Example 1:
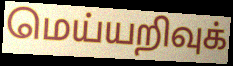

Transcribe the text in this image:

மெய்யறிவுக்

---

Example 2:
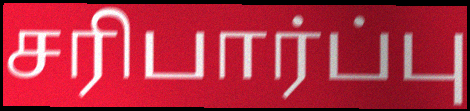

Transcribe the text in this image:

சரிபார்ப்பு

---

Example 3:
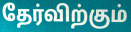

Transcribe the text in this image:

தேர்விற்கும்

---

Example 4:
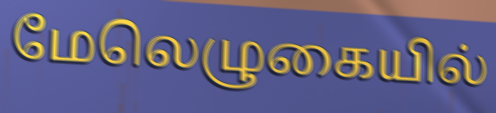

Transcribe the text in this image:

மேலெழுகையில்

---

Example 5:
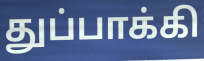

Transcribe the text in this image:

துப்பாக்கி